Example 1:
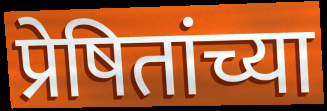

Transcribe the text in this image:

प्रेषितांच्या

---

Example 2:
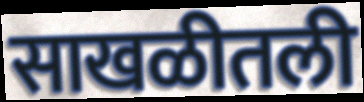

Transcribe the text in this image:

साखळीतली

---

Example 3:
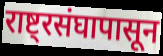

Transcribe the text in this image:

राष्ट्रसंघापासून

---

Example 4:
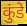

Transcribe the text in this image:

कुंडे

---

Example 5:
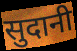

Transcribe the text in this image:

सुदानी